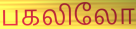
பகலிலோ